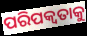
ପରିପକ୍ୱତାକୁ